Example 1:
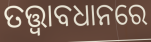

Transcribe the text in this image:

ତତ୍ତ୍ବାବଧାନରେ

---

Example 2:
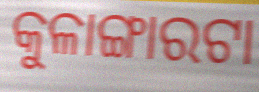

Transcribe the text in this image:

କୁଳାଙ୍ଗାରଟା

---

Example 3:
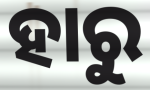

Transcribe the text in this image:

ହାରୁ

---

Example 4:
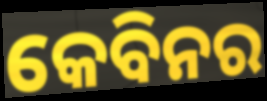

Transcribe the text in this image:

କେବିନର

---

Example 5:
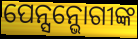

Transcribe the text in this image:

ପେନ୍ସନ୍ଭୋଗୀଙ୍କ